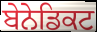
ਬੇਨੇਡਿਕਟ